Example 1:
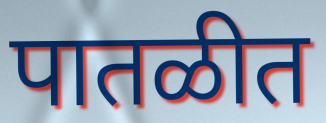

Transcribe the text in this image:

पातळीत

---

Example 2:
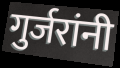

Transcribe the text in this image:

गुर्जरांनी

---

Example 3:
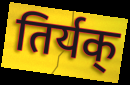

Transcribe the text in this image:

तिर्यक्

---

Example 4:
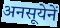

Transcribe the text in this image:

अनसूयेनें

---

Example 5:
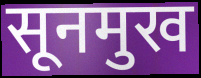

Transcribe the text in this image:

सूनमुख